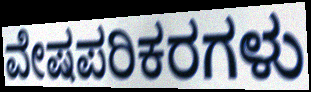
ವೇಷಪರಿಕರಗಳು